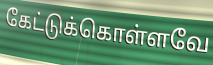
கேட்டுக்கொள்ளவே